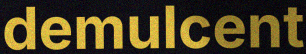
demulcent